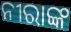
ନୀରାଙ୍କ